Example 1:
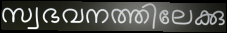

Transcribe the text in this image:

സ്വഭവനത്തിലേക്കു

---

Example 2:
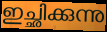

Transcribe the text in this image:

ഇച്ഛിക്കുന്നു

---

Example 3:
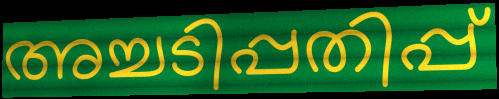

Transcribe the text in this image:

അച്ചടിപ്പതിപ്പ്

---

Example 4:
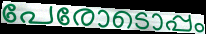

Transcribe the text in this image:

പേരോടൊപ്പം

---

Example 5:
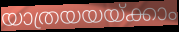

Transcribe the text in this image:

യാത്രയയയ്ക്കാം